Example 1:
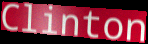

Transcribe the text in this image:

Clinton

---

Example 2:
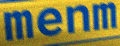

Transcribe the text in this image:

menm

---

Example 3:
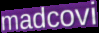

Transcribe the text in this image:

madcovi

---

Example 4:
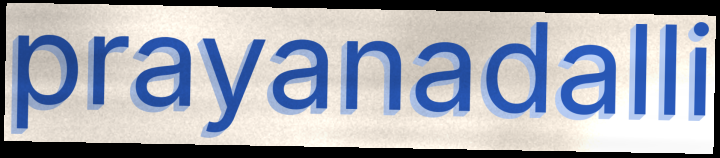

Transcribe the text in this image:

prayanadalli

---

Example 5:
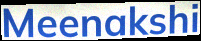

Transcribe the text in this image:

Meenakshi